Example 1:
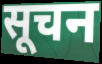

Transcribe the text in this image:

सूचन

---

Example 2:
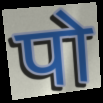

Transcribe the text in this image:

पो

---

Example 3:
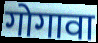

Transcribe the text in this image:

गोगावा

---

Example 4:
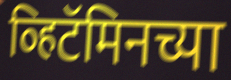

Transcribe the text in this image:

व्हिटॅमिनच्या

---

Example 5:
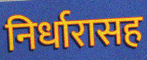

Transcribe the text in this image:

निर्धारासह